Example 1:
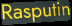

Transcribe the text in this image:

Rasputin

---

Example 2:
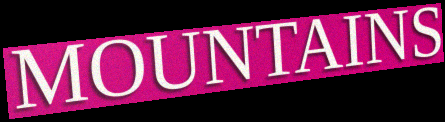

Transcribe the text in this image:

MOUNTAINS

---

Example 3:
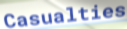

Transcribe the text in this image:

Casualties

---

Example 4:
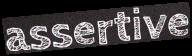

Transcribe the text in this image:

assertive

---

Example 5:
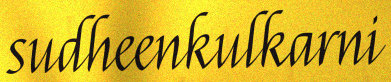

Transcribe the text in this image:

sudheenkulkarni